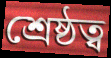
শ্ৰেষ্ঠত্ব